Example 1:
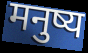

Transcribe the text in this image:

मनुष्य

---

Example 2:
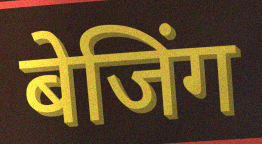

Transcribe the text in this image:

बेजिंग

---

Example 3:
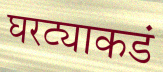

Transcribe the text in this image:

घरट्याकडं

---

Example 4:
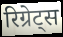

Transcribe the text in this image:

रिग्रेट्स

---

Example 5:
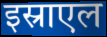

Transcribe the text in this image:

इस्राएल